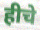
हीचे